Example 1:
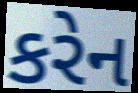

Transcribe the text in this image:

કરેન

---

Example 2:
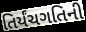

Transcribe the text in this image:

તિર્યંચગતિની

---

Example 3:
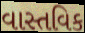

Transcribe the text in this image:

વાસ્તવિક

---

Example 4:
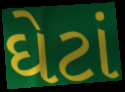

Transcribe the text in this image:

ઘેટાં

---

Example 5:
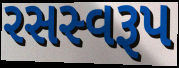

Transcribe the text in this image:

રસસ્વરૂપ